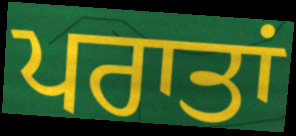
ਪਰਾਤਾਂ